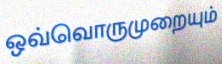
ஒவ்வொருமுறையும்